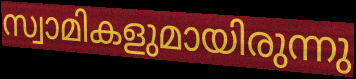
സ്വാമികളുമായിരുന്നു